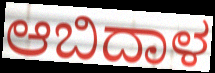
ಆಬಿದಾಳ